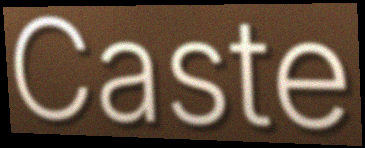
Caste